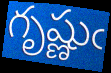
గృష్ణుఁ